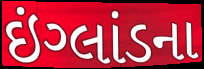
ઇંગ્લાંડના